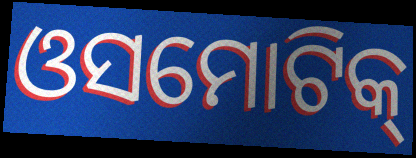
ଓସମୋଟିକ୍